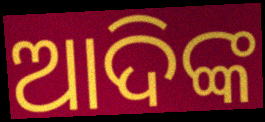
ଆଦିଙ୍କ